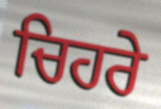
ਚਿਹਰੇ